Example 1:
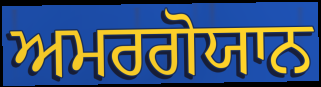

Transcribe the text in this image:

ਅਮਰਗੋਯਾਨ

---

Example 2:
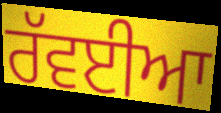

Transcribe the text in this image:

ਰੱਵਈਆ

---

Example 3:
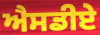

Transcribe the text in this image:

ਐਸਡੀਏ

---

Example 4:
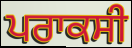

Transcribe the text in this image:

ਪਰਾਕਸੀ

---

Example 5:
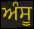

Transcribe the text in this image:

ਅੰਸੂ